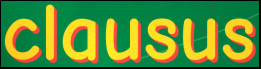
clausus